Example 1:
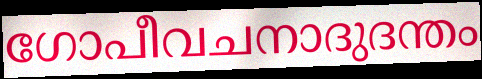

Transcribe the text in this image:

ഗോപീവചനാദുദന്തം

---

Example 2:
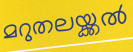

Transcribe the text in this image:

മറുതലയ്ക്കൽ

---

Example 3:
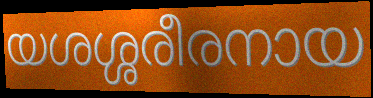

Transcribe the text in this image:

യശശ്ശരീരനായ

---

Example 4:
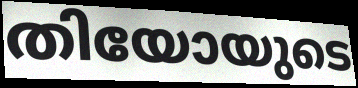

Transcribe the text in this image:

തിയോയുടെ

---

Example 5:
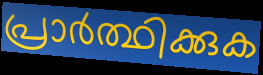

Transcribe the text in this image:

പ്രാർത്ഥിക്കുക